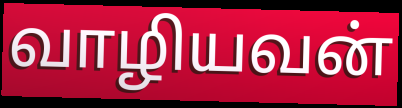
வாழியவன்